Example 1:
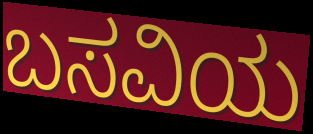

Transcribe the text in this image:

ಬಸವಿಯ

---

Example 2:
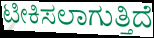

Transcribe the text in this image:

ಟೀಕಿಸಲಾಗುತ್ತಿದೆ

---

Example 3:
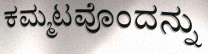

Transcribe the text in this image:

ಕಮ್ಮಟವೊಂದನ್ನು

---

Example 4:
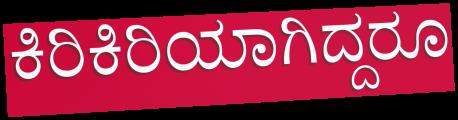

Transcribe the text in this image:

ಕಿರಿಕಿರಿಯಾಗಿದ್ದರೂ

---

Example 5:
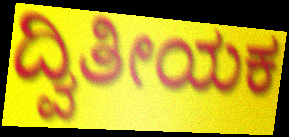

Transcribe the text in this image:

ದ್ವಿತೀಯಕ